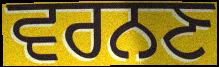
ਵਰਨਣ